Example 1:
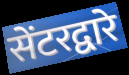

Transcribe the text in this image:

सेंटरद्वारे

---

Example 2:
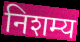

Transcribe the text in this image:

निशम्य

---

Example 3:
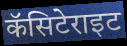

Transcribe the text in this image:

कॅसिटेराइट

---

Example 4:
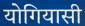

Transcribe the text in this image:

योगियासी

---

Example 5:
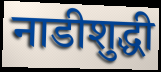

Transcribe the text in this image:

नाडीशुद्धी